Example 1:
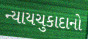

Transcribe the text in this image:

ન્યાયચુકાદાનો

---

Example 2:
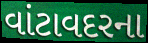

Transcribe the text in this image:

વાંટાવદરના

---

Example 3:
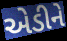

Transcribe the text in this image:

એડીને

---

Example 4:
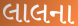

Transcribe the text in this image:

લાલના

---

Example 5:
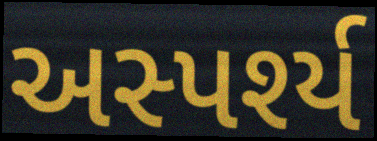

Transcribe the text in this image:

અસ્પર્શ્ય